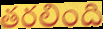
తరలింది